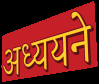
अध्ययने